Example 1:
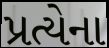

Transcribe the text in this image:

પ્રત્યેના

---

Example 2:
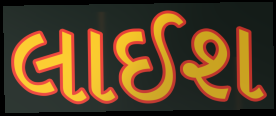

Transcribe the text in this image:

લાઈશ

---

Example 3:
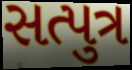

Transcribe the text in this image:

સત્પુત્ર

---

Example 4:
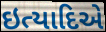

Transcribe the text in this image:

ઇત્યાદિએ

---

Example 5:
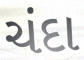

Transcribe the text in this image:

ચંદા